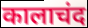
कालाचंद